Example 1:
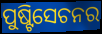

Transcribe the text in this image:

ପୁଷ୍ଟିସେଚନର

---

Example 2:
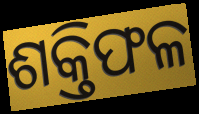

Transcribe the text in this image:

ଶକ୍ତିଫଳ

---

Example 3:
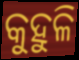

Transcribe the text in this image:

କୁହୁଳି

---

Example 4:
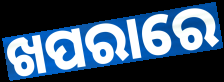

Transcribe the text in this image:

ଖପରାରେ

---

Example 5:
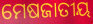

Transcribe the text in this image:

ମେଷଜାତୀୟ